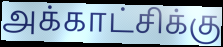
அக்காட்சிக்கு